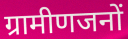
ग्रामीणजनों